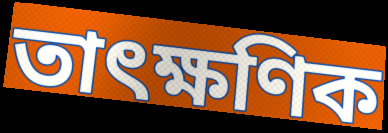
তাৎক্ষণিক